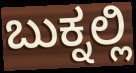
ಬುಕ್ನಲ್ಲಿ